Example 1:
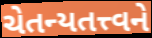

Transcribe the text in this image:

ચેતન્યતત્ત્વને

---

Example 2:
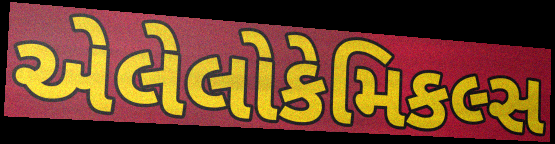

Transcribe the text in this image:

એલેલોકેમિકલ્સ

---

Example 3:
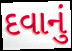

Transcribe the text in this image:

દવાનું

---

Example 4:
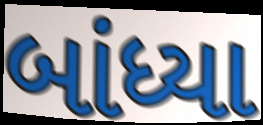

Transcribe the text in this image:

બાંધ્યા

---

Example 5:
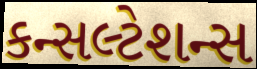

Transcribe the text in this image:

કન્સલ્ટેશન્સ